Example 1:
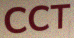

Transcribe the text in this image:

CCT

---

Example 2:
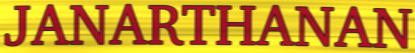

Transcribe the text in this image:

JANARTHANAN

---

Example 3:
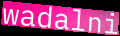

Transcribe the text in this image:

wadalni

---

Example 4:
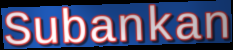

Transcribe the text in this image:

Subankan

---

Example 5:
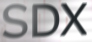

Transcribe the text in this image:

SDX